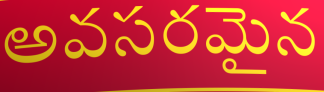
అవసరమైన